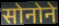
सोनोने